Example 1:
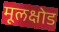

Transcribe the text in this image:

मूलक्षोड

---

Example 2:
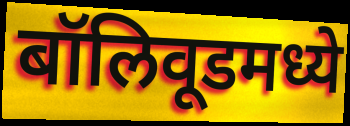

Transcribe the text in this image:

बॉलिवूडमध्ये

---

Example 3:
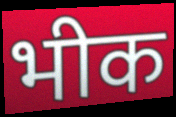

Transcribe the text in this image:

भीक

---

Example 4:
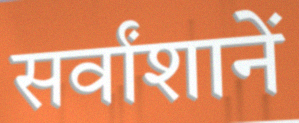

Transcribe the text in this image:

सर्वांशानें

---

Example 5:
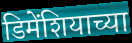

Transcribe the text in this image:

डिमेंशियाच्या